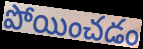
పోయించడం